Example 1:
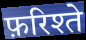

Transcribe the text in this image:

फ़रिश्ते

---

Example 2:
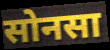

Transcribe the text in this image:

सोनसा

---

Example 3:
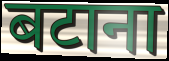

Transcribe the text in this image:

बटाना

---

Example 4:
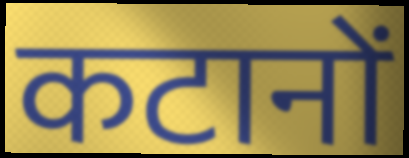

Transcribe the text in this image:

कटानों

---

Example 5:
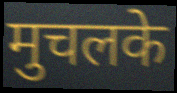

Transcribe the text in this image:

मुचलके